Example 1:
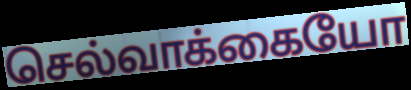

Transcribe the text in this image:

செல்வாக்கையோ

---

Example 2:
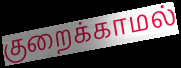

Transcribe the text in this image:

குறைக்காமல்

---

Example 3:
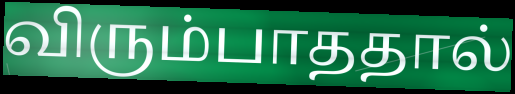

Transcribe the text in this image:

விரும்பாததால்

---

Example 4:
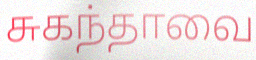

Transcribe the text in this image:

சுகந்தாவை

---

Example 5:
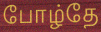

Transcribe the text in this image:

போழ்தே